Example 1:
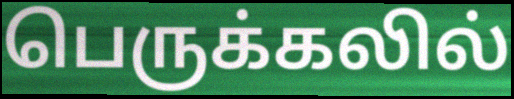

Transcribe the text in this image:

பெருக்கலில்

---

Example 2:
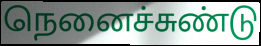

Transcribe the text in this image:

நெனைச்சுண்டு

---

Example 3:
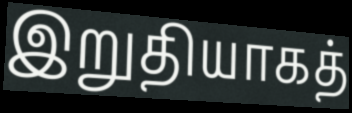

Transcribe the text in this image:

இறுதியாகத்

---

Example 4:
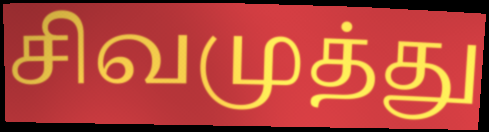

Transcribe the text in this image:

சிவமுத்து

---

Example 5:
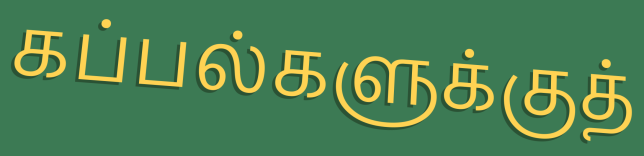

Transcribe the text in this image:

கப்பல்களுக்குத்